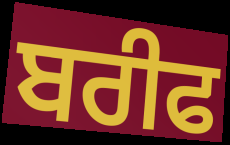
ਬਰੀਫ